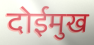
दोईमुख